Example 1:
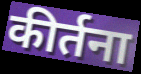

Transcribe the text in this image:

कीर्तना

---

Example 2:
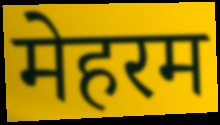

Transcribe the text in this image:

मेहरम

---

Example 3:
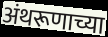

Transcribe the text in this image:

अंथरूणाच्या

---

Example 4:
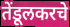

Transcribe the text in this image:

तेंडूलकरचे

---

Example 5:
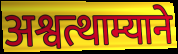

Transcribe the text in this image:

अश्वत्थाम्याने